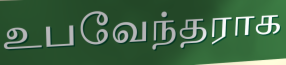
உபவேந்தராக